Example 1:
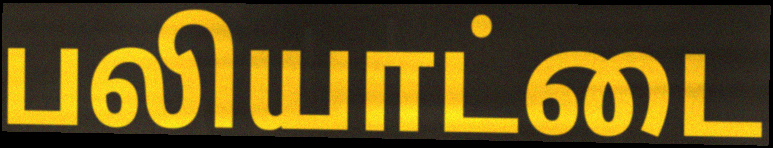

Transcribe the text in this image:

பலியாட்டை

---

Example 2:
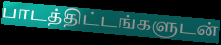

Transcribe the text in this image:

பாடத்திட்டங்களுடன்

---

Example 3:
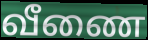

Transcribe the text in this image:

வீணை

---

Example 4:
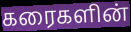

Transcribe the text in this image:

கரைகளின்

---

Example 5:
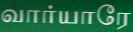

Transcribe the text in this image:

வார்யாரே